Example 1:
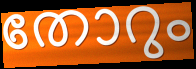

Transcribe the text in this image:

തോറും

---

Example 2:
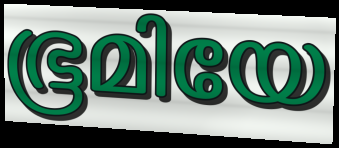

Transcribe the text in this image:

ഭൂമിയേ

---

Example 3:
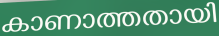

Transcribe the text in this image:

കാണാത്തതായി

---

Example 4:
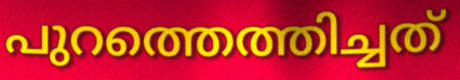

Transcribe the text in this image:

പുറത്തെത്തിച്ചത്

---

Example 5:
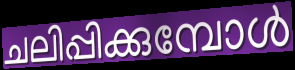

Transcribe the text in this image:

ചലിപ്പിക്കുമ്പോൾ